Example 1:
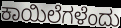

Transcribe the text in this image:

ಕಾಯಿಲೆಗಳೆಂದು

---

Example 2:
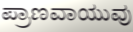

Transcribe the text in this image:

ಪ್ರಾಣವಾಯುವು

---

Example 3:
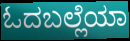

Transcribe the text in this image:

ಓದಬಲ್ಲೆಯಾ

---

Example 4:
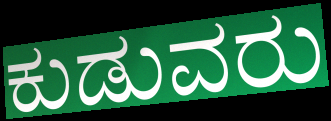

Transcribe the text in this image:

ಕುಡುವರು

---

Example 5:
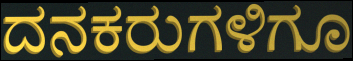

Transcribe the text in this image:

ದನಕರುಗಳಿಗೂ